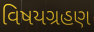
વિષયગ્રહણ